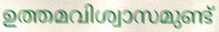
ഉത്തമവിശ്വാസമുണ്ട്